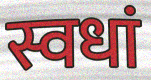
स्वधां